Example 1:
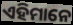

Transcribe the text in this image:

ଏହିମାନେ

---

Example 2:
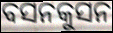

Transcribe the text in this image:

ବସନକୁସନ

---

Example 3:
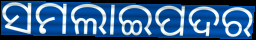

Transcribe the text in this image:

ସମଲାଇପଦର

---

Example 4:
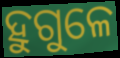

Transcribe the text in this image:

ହୁଗୁଳେ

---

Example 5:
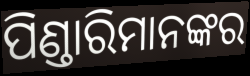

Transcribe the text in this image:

ପିଣ୍ଡାରିମାନଙ୍କର